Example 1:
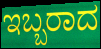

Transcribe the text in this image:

ಇಬ್ಬರಾದ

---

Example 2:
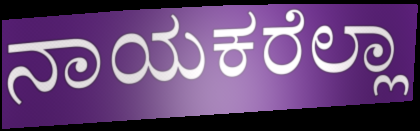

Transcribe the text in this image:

ನಾಯಕರೆಲ್ಲಾ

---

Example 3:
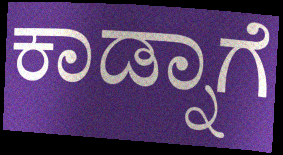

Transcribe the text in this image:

ಕಾಡ್ನಾಗೆ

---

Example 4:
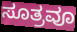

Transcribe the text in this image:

ಸೂತ್ರವೂ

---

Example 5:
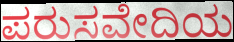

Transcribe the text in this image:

ಪರುಸವೇದಿಯ